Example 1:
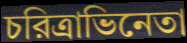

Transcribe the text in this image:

চরিত্রাভিনেতা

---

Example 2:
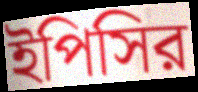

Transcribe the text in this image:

ইপিসির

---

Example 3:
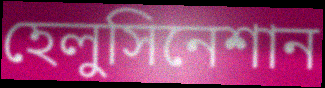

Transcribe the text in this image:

হেলুসিনেশান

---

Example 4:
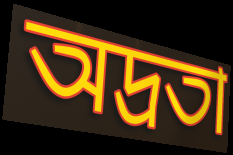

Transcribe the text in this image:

অদ্রতা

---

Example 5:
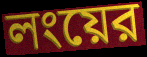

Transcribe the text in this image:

লংয়ের